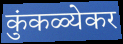
कुंकळ्येकर